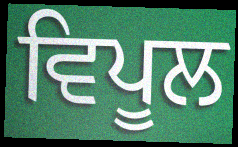
ਵਿਪੂਲ